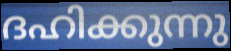
ദഹിക്കുന്നു